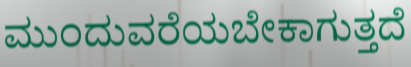
ಮುಂದುವರೆಯಬೇಕಾಗುತ್ತದೆ